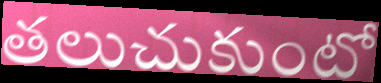
తలుచుకుంటో